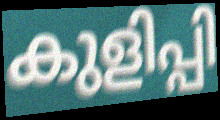
കുളിപ്പി